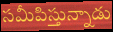
సమీపిస్తున్నాడు